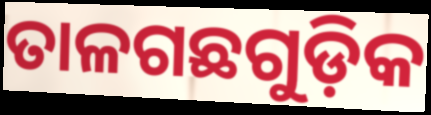
ତାଳଗଛଗୁଡ଼ିକ